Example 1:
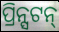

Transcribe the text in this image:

ପ୍ରିନ୍ସଟନ୍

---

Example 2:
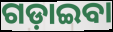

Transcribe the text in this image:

ଗଡ଼ାଇବା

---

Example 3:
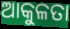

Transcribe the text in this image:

ଆକୁଳତା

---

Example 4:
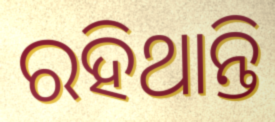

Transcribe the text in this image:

ରହିଥାନ୍ତି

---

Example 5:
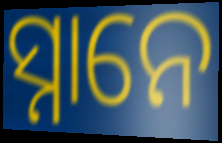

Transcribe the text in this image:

ସ୍ନାନେ